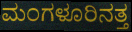
ಮಂಗಳೂರಿನತ್ತ